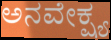
ಅನವೇಕ್ಷ್ಯ